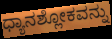
ಧ್ಯಾನಶ್ಲೋಕವನ್ನು